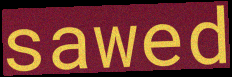
sawed